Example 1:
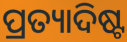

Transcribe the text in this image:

ପ୍ରତ୍ୟାଦିଷ୍ଟ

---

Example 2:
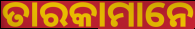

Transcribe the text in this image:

ତାରକାମାନେ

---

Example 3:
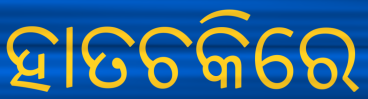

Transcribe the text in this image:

ହାତଚକିରେ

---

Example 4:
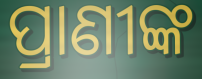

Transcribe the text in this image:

ପ୍ରାଣୀଙ୍କ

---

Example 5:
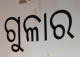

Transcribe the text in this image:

ଗୁଳାର